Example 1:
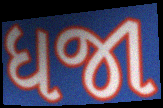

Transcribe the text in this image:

ધજા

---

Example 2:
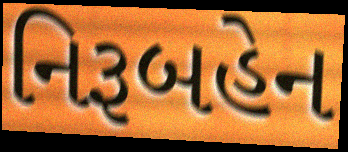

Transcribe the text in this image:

નિરૂબહેન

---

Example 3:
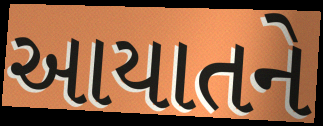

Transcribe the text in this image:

આયાતને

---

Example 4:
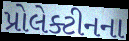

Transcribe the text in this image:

પ્રોલેક્ટીનના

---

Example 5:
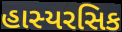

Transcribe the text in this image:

હાસ્યરસિક